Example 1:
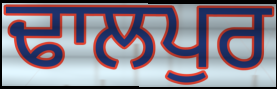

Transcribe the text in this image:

ਢਾਲਪੁਰ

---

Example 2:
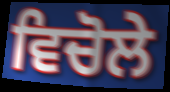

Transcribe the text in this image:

ਵਿਚੋਲੇ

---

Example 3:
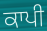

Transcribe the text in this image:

ਕਾਪੀ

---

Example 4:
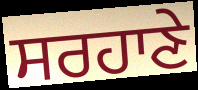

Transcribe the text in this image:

ਸਰਹਾਣੇ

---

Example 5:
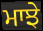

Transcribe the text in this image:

ਮਾਝੇ